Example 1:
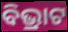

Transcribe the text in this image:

ବିଭ୍ରାଟ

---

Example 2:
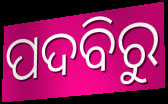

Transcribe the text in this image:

ପଦବିରୁ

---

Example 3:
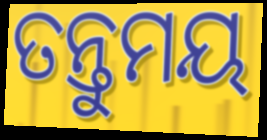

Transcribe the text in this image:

ତନ୍ତୁମୟ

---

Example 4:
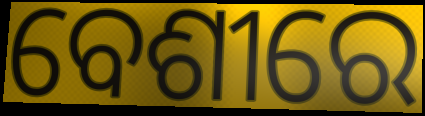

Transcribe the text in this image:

ବେଶୀରେ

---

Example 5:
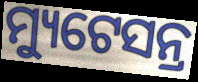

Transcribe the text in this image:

ମ୍ୟୁଟେସନ୍ର